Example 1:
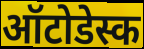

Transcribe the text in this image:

ऑटोडेस्क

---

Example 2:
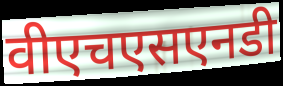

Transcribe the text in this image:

वीएचएसएनडी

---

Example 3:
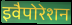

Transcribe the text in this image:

इवैपोरेशन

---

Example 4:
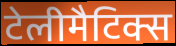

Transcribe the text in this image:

टेलीमैटिक्स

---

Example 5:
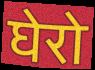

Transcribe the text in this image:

घेरो